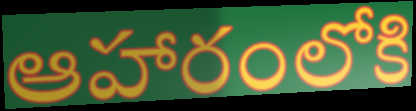
ఆహారంలోకి